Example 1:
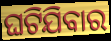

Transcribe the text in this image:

ଘଟିଯିବାର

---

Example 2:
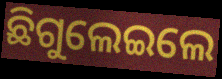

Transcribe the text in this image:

ଛିଗୁଲେଇଲେ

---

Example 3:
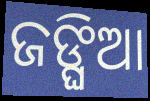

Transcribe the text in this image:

ଜଙ୍ଘିଆ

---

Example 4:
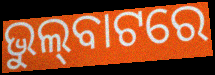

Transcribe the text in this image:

ଭୁଲ୍‌ବାଟରେ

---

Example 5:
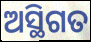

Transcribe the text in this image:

ଅସ୍ଥିଗତ